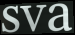
sva